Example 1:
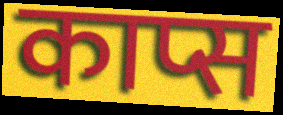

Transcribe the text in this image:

काप्स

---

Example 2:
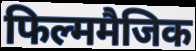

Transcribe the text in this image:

फिल्ममैजिक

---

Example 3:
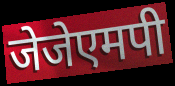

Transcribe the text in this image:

जेजेएमपी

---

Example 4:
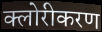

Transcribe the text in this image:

क्लोरीकरण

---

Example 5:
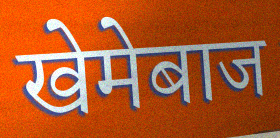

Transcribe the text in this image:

खेमेबाज